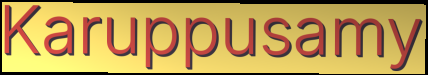
Karuppusamy